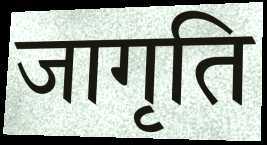
जागृति